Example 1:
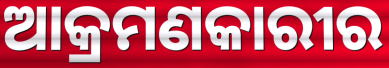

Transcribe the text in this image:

ଆକ୍ରମଣକାରୀର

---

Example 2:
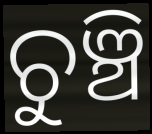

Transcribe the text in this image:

ଚୁଞ୍ଚି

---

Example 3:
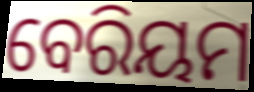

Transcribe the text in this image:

ବେରିୟମ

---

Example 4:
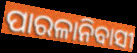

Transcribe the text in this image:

ପାରଳାନିବାସୀ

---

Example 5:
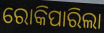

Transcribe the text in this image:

ରୋକିପାରିଲା